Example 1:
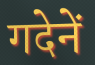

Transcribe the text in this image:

गदेनें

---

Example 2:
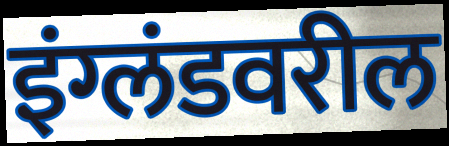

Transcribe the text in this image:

इंग्लंडवरील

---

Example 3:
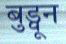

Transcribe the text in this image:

बुड्वून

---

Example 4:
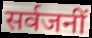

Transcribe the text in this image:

सर्वजनीं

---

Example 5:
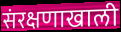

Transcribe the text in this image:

संरक्षणाखाली